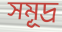
সমূদ্র